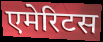
एमेरिटस